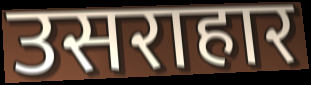
उसराहार